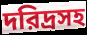
দরিদ্রসহ